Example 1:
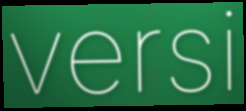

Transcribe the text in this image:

versi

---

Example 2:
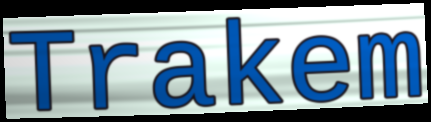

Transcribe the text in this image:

Trakem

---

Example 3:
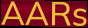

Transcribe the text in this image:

AARs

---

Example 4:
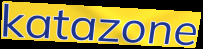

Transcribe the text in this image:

katazone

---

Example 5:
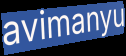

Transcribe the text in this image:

avimanyu